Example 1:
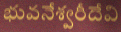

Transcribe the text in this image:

భువనేశ్వరీదేవి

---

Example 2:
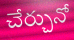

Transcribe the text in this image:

చేర్చునో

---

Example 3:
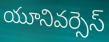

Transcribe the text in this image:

యూనివర్సెస్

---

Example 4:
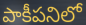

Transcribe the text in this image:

పాకీపనిలో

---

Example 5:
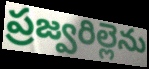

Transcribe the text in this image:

ప్రజ్వరిల్లెను